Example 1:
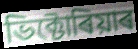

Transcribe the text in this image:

ভিক্টোৰিয়াৰ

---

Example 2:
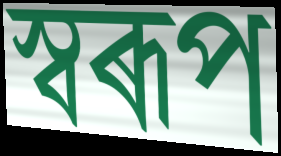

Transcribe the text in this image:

স্বৰূপ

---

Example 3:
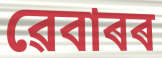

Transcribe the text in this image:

ৱেবাৰৰ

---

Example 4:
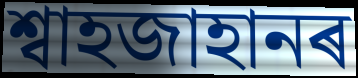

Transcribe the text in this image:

শ্বাহজাহানৰ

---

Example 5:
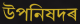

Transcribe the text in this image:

উপনিষদৰ